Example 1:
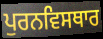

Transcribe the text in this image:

ਪੁਰਨਵਿਸਥਾਰ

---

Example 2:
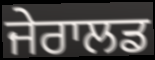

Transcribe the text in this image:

ਜੇਰਾਲਡ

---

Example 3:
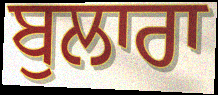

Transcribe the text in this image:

ਬੁਲਾਰਾ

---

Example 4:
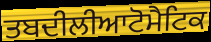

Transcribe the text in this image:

ਤਬਦੀਲੀਆਟੋਮੈਟਿਕ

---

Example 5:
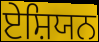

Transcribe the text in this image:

ਏਸ਼ਿਯਨ